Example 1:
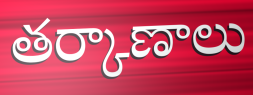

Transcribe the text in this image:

తర్కాణాలు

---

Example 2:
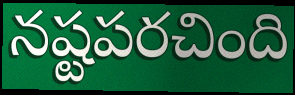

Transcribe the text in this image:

నష్టపరచింది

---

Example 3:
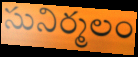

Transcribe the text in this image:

సునిర్మలం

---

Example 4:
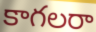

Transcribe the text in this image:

కాగలరా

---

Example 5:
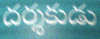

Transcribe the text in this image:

దర్శకుడు